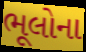
ભૂલોના